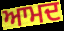
ਆਮਦ